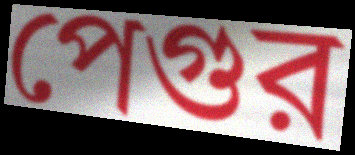
পেগুর